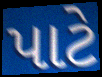
પાટે